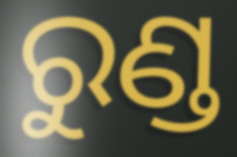
ରୁଣ୍ଡ